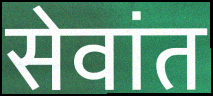
सेवांत